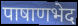
पाषाणभेद